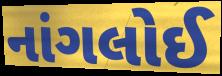
નાંગલોઈ